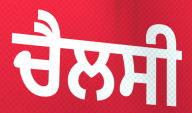
ਚੈਲਸੀ